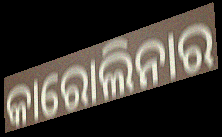
କାରୋଲିନାର